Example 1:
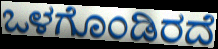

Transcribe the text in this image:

ಒಳಗೊಂಡಿರದೆ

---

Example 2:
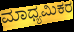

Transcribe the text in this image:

ಮಾಧ್ಯಮಿಕರ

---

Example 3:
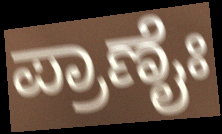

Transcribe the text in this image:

ಪ್ರಾಣೈಃ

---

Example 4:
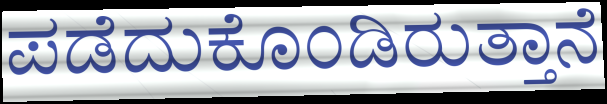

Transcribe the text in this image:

ಪಡೆದುಕೊಂಡಿರುತ್ತಾನೆ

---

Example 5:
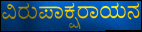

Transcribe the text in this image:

ವಿರುಪಾಕ್ಷರಾಯನ